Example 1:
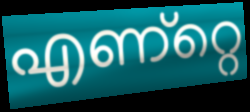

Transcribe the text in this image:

എണ്റ്റെ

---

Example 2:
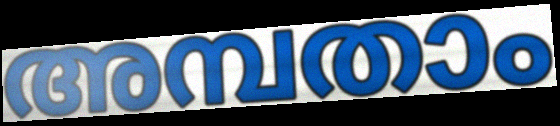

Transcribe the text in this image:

അമ്പതാം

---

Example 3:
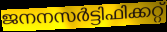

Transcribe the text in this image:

ജനനസർട്ടിഫിക്കറ്റ്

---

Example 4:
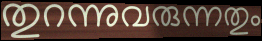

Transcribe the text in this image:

തുറന്നുവരുന്നതും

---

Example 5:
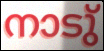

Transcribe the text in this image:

നാടു്